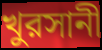
খুরসানী